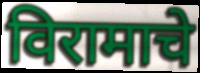
विरामाचे